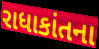
રાધાકાંતના